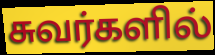
சுவர்களில்